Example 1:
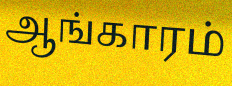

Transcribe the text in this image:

ஆங்காரம்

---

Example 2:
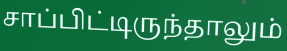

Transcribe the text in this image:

சாப்பிட்டிருந்தாலும்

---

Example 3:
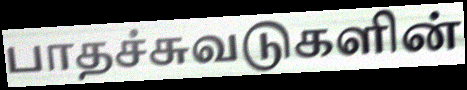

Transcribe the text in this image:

பாதச்சுவடுகளின்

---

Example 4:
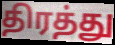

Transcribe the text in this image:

திரத்து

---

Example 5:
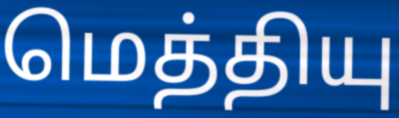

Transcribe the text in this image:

மெத்தியு